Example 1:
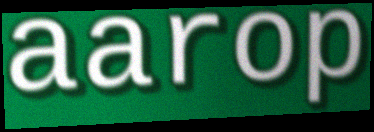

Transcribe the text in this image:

aarop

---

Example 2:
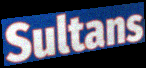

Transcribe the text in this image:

Sultans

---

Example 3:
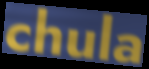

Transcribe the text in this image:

chula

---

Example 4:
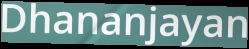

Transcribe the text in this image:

Dhananjayan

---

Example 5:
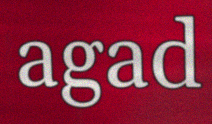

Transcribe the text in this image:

agad